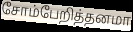
சோம்பேறித்தனமா